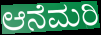
ಆನೆಮರಿ